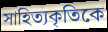
সাহিত্যকৃতিকে